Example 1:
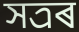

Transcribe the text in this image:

সত্ৰৰ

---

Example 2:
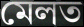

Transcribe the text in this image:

মেলত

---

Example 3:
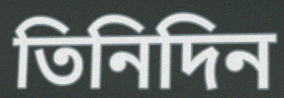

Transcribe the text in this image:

তিনিদিন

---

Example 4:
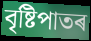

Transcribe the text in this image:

বৃষ্টিপাতৰ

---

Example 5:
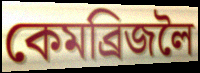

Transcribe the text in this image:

কেমব্ৰিজলৈ